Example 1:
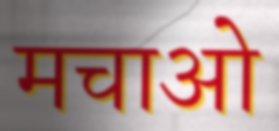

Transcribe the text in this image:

मचाओ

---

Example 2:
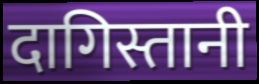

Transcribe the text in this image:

दागिस्तानी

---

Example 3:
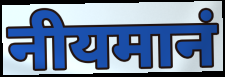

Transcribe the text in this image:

नीयमानं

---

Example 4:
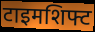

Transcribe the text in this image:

टाइमशिफ्ट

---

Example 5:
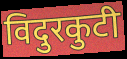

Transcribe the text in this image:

विदुरकुटी